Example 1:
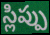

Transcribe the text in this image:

స్లిప్పు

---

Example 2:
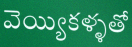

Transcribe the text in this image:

వెయ్యికళ్ళతో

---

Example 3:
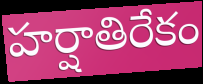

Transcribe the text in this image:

హర్షాతిరేకం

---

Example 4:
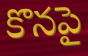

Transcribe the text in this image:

కొనపై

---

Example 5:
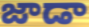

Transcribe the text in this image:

జాడా